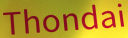
Thondai